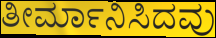
ತೀರ್ಮಾನಿಸಿದವು